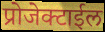
प्रोजेक्टाईल